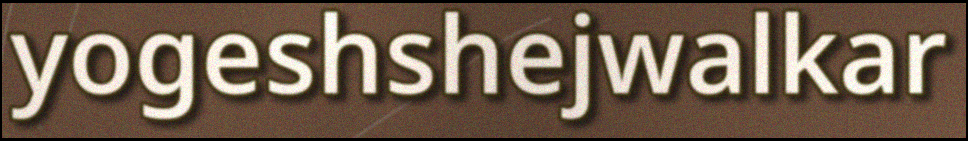
yogeshshejwalkar